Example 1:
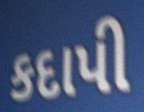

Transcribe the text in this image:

કદાપી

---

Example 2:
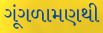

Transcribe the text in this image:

ગૂંગળામણથી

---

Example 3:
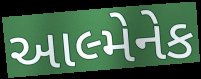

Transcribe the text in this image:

આલ્મેનેક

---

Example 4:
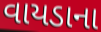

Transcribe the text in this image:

વાયડાના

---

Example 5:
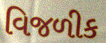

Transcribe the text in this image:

વિજળીક